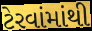
ટેરવાંમાંથી